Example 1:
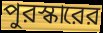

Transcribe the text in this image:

পুরস্কারের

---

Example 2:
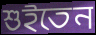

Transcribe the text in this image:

শুইতেন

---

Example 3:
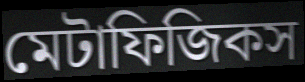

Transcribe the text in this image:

মেটাফিজিকস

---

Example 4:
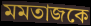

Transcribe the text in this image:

মমতাজকে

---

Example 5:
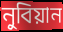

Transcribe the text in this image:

নুবিয়ান